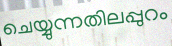
ചെയ്യുന്നതിലപ്പുറം